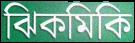
ঝিকমিকি